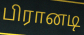
பிரானடி